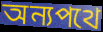
অন্যপথে